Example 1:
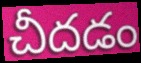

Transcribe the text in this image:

చీదడం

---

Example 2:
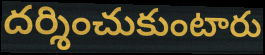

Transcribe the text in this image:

దర్శించుకుంటారు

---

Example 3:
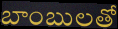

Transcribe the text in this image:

బాంబులతో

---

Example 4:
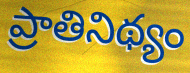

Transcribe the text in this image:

ప్రాతినిథ్యం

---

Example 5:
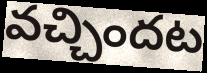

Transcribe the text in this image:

వచ్చిందట